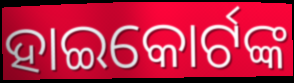
ହାଇକୋର୍ଟଙ୍କ